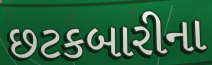
છટકબારીના